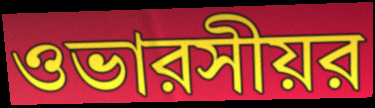
ওভারসীয়র